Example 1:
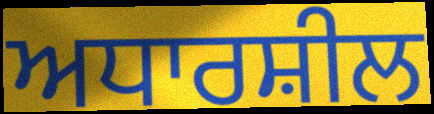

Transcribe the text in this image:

ਅਧਾਰਸ਼ੀਲ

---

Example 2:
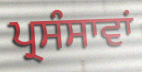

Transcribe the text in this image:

ਪ੍ਰਸੰਸਾਵਾਂ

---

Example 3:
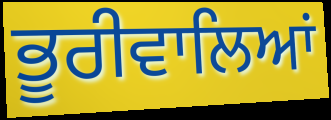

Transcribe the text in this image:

ਭੂਰੀਵਾਲਿਆਂ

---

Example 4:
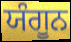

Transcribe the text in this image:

ਯੰਗੂਨ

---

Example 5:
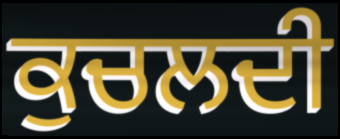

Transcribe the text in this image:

ਕੁਚਲਦੀ